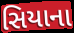
સિયાના